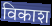
विकाश